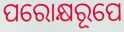
ପରୋକ୍ଷରୂପେ